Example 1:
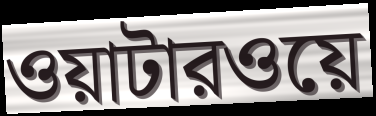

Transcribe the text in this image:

ওয়াটারওয়ে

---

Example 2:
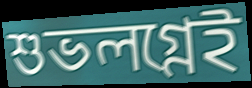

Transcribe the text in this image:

শুভলগ্নেই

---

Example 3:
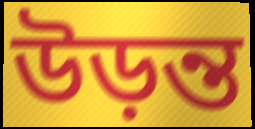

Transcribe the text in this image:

উড়ন্ত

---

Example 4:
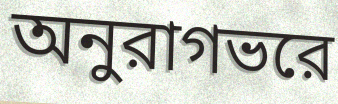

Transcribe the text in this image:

অনুরাগভরে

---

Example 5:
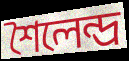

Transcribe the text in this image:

শৈলেন্দ্র